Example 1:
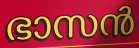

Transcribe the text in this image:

ഭാസൻ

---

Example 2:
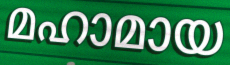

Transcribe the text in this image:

മഹാമായ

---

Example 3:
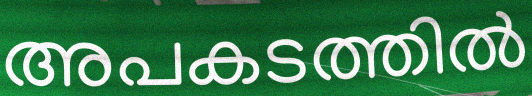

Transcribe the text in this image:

അപകടത്തിൽ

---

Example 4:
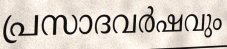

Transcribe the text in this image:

പ്രസാദവർഷവും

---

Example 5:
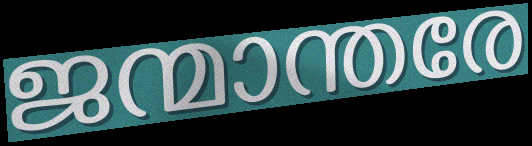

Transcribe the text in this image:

ജന്മാന്തരേ